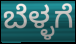
ಬೆಳ್ಳಗೆ